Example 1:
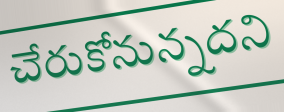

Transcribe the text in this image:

చేరుకోనున్నదని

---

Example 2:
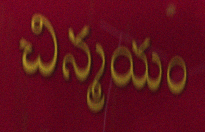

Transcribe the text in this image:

చిన్మయం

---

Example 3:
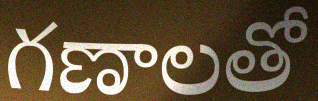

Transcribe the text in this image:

గణాలతో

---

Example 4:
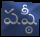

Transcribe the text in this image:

షష్ఠీ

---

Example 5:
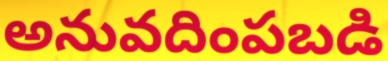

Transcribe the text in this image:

అనువదింపబడి